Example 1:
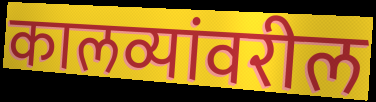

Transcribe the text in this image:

कालव्यांवरील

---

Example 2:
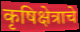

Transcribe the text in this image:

कृषिक्षेत्राचे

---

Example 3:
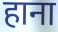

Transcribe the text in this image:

हाना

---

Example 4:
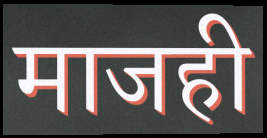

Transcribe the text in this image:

माजही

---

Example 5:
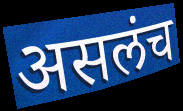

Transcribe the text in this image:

असलंच